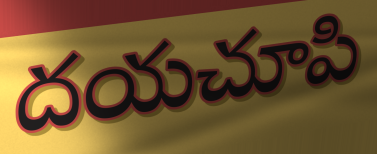
దయచూపి